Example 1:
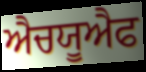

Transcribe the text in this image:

ਐਚਯੂਐਫ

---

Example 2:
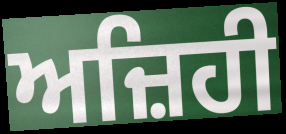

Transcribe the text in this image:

ਅਜ਼ਿਹੀ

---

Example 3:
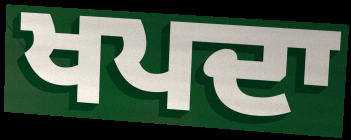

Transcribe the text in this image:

ਖਪਦਾ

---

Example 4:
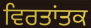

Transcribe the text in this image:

ਵਿਰਤਾਂਤਕ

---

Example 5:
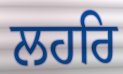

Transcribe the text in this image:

ਲਹਰਿ